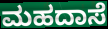
ಮಹದಾಸೆ